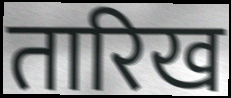
तारिख